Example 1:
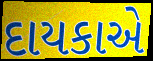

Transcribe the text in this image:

દાયકાએ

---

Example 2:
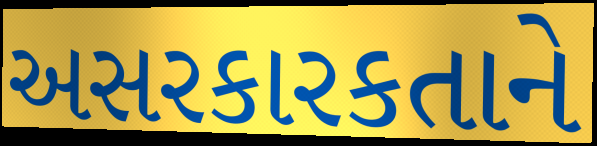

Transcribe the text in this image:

અસરકારકતાને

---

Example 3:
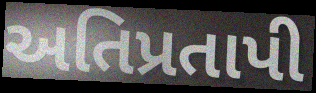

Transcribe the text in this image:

અતિપ્રતાપી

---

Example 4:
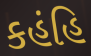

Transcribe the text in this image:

કહંહિ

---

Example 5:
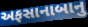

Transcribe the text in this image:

અફસાનાબાનુ